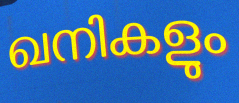
ഖനികളും